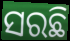
ସରଛି